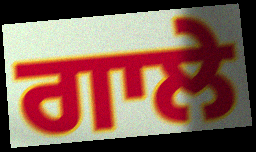
ਗਾਲੇ